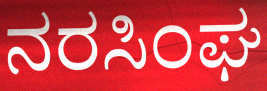
ನರಸಿಂಘ